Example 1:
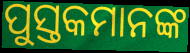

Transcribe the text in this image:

ପୁସ୍ତକମାନଙ୍କ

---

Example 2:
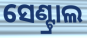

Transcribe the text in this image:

ସେଣ୍ଟ୍ରାଲ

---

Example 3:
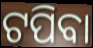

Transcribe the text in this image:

ଟପିବା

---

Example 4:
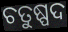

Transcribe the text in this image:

ଚତୁଷ୍ପଦ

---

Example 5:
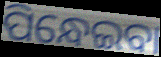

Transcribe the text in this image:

ପିନ୍ଧେଇବା